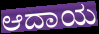
ಆದಾಯ